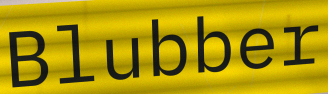
Blubber